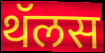
थॅलस